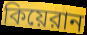
কিয়েরান